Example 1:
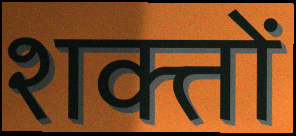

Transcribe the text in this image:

शक्तों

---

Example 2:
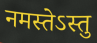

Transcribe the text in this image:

नमस्तेऽस्तु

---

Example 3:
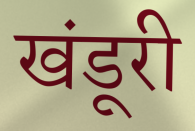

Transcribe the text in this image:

खंडूरी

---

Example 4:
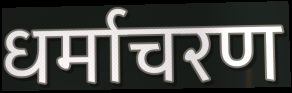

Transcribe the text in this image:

धर्माचरण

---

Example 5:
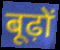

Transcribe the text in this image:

बूढ़ों